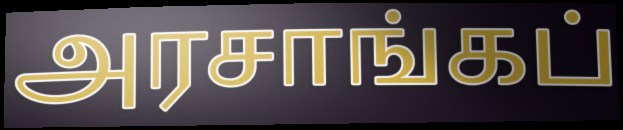
அரசாங்கப்